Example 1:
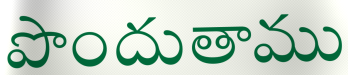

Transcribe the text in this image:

పొందుతాము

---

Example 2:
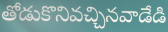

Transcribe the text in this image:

తోడుకొనివచ్చినవాడేడి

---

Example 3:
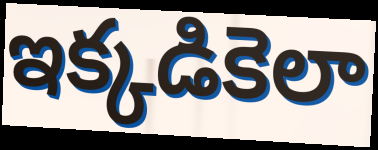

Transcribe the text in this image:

ఇక్కడికెలా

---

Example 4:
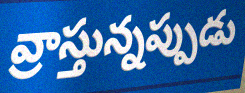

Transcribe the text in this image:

వ్రాస్తున్నప్పుడు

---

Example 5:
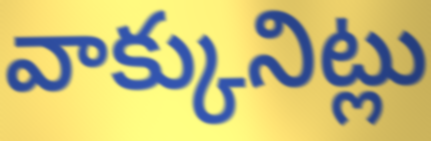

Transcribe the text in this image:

వాక్కునిట్లు